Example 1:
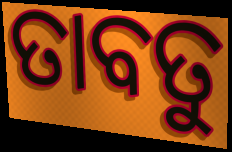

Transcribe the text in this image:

ତାବତୁ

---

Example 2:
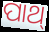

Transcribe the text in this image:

ପାଥ୍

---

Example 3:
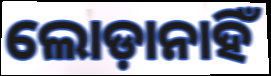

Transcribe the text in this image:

ଲୋଡ଼ାନାହିଁ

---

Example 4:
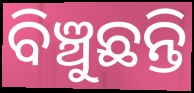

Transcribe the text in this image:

ବିଞ୍ଚୁଛନ୍ତି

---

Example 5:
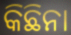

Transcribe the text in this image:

କିଛିନା